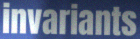
invariants